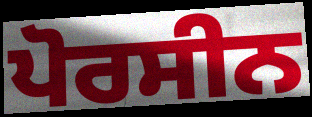
ਪੋਰਸੀਨ